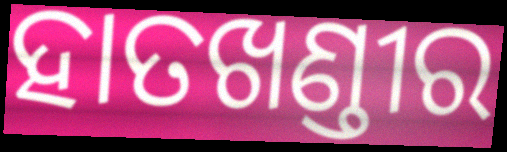
ହାତଖଣ୍ଡୀର